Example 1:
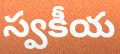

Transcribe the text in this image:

స్వకీయ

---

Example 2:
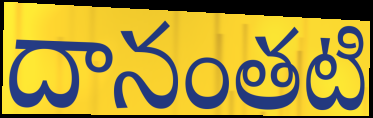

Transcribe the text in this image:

దానంతటి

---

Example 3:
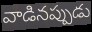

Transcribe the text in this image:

వాడినప్పుడు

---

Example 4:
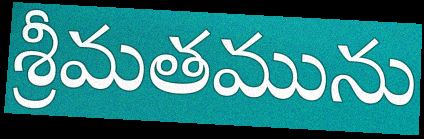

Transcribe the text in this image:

శ్రీమతమును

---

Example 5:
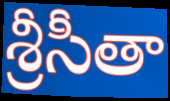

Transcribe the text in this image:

శ్రీసీతా